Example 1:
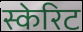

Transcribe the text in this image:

स्केरिट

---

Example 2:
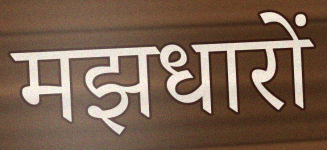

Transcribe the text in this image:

मझधारों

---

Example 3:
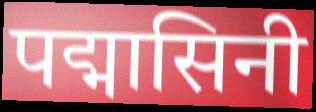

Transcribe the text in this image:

पद्मासिनी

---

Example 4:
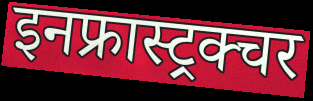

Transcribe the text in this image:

इनफ्रास्ट्रक्चर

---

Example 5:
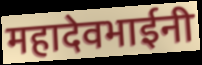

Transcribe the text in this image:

महादेवभाईनी